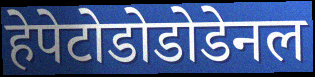
हेपेटोडोडोडेनल